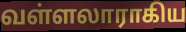
வள்ளலாராகிய